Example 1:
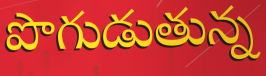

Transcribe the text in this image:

పొగుడుతున్న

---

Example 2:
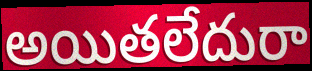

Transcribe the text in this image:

అయితలేదురా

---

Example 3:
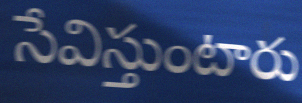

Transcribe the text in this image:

సేవిస్తుంటారు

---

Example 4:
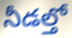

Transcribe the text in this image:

నీడల్తో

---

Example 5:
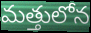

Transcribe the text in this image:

మత్తులోన